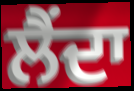
ਲੈਂਦਾ